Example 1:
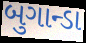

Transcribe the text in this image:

બુગાન્ડા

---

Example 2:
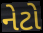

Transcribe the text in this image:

નેટો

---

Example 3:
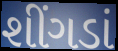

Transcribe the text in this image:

શીંગડાં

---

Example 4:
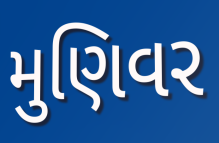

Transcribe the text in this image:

મુણિવર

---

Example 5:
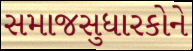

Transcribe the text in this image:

સમાજસુધારકોને